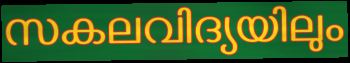
സകലവിദ്യയിലും